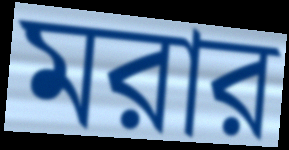
মরার